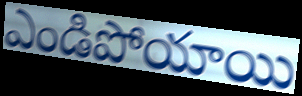
ఎండిపోయాయి